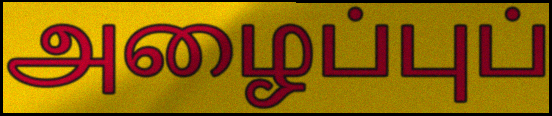
அழைப்புப்